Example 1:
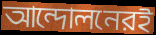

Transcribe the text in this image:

আন্দোলনেরই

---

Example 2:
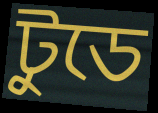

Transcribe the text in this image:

টুডে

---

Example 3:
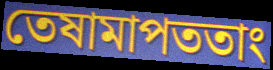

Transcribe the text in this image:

তেষামাপততাং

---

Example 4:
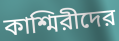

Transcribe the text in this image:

কাশ্মিরীদের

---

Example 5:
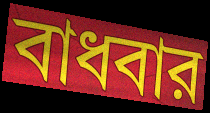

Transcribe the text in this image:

বাধবার